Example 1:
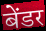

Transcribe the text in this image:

बेंडर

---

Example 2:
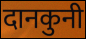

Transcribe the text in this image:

दानकुनी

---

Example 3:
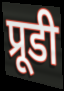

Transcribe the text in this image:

प्रूडी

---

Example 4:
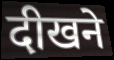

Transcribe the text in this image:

दीखने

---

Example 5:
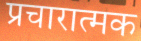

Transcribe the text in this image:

प्रचारात्मक